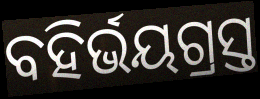
ବହିର୍ଭୟଗ୍ରସ୍ତ